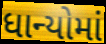
ધાન્યોમાં